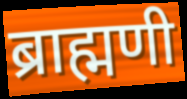
ब्राह्मणी